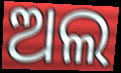
ଅଲ